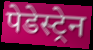
पेडेस्ट्रेन